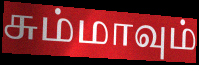
சும்மாவும்